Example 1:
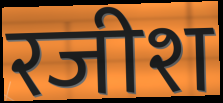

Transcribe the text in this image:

रजीश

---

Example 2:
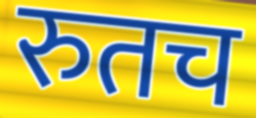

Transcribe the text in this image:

रुतच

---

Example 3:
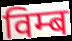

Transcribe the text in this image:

विम्ब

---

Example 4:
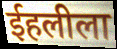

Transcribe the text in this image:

ईहलीला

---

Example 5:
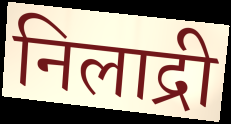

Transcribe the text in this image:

निलाद्री